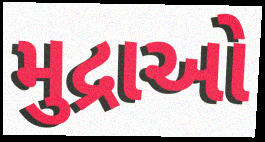
મુદ્રાઓ